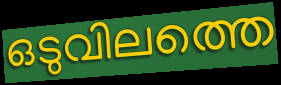
ഒടുവിലത്തെ